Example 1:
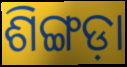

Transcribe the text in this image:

ଶିଙ୍ଗଡ଼ା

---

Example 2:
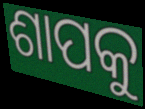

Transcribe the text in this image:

ଶାପକୁ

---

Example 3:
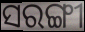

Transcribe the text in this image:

ସରଙ୍ଗୀ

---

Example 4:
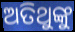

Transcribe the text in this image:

ଅତିଥୁଙ୍କୁ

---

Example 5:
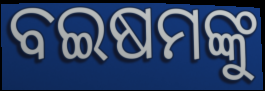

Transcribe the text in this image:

ବଇଷମଙ୍କୁ